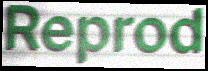
Reprod